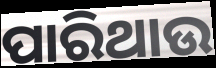
ପାରିଥାଉ